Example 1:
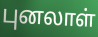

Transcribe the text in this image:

புனலாள்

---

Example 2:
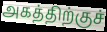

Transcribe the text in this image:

அகத்திற்குச்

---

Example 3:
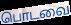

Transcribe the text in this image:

பொடவை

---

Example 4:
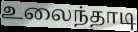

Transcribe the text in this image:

உலைந்தாடி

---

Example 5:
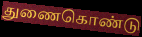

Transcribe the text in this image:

துணைகொண்டு